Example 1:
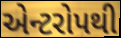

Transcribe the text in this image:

એન્ટરોપથી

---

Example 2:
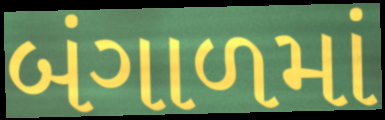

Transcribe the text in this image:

બંગાળમાં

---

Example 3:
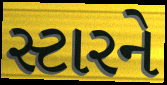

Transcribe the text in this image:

સ્ટારને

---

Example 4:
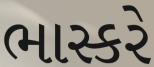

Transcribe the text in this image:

ભાસ્કરે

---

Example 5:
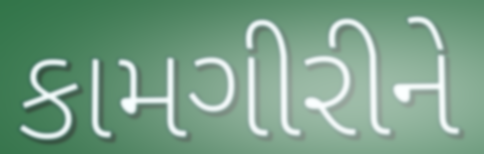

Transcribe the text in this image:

કામગીરીને